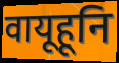
वायूहूनि